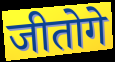
जीतोगे